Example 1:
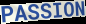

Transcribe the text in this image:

PASSION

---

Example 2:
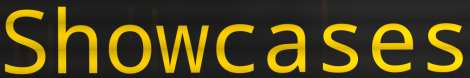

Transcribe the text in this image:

Showcases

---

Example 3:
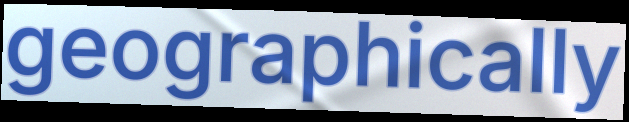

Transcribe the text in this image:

geographically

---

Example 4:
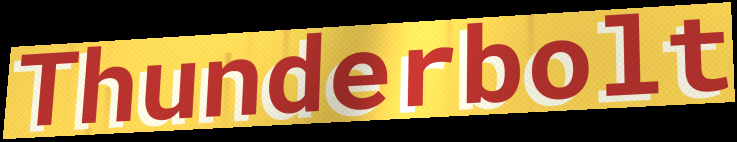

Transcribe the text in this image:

Thunderbolt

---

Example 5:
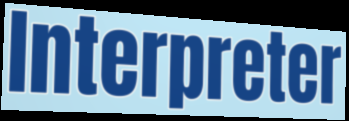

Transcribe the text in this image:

Interpreter